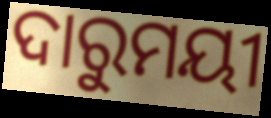
ଦାରୁମୟୀ